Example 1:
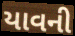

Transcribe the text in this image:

યાવની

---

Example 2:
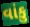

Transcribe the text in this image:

વાંકુ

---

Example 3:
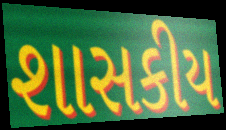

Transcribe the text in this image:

શાસકીય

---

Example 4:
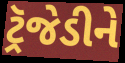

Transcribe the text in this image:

ટ્રૅજેડીને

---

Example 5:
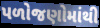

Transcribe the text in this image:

પળોજણોમાંથી